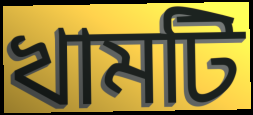
খামটি